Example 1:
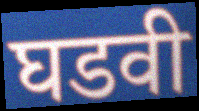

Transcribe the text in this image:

घडवी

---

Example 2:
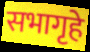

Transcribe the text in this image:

सभागृहे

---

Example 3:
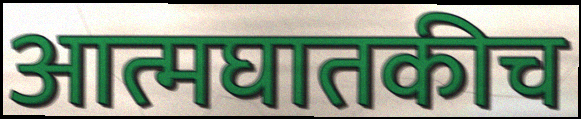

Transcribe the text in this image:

आत्मघातकीच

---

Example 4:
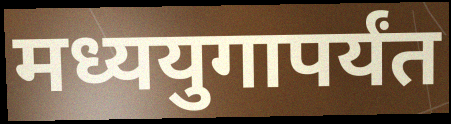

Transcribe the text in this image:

मध्ययुगापर्यंत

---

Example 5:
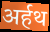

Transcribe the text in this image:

अर्हथ